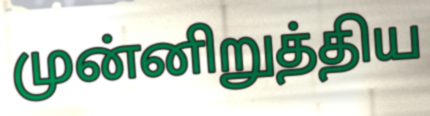
முன்னிறுத்திய